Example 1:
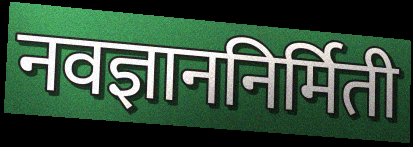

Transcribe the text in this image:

नवज्ञाननिर्मिती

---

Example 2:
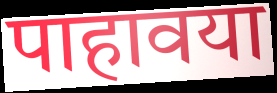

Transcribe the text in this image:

पाहावया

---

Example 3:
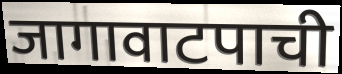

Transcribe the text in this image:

जागावाटपाची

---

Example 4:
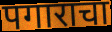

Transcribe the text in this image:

पगाराचा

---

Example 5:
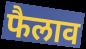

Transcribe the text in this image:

फैलाव